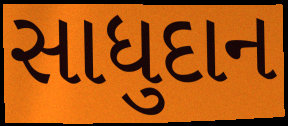
સાધુદાન